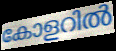
കോളറിൽ